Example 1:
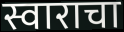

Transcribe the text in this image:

स्वाराचा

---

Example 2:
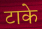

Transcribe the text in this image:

टाके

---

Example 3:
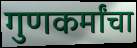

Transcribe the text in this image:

गुणकर्मांचा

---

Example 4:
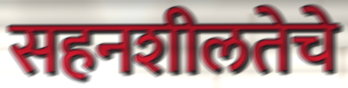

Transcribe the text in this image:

सहनशीलतेचे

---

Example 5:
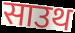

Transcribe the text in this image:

साउथ